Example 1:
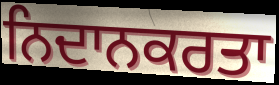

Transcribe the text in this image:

ਨਿਦਾਨਕਰਤਾ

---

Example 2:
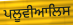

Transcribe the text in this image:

ਪਲੂਵੀਆਲਿਸ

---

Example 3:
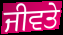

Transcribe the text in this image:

ਜੀਵਤੇ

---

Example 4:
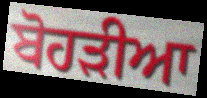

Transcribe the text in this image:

ਬੋਹੜੀਆ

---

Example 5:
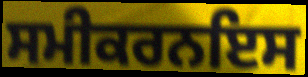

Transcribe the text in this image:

ਸਮੀਕਰਨਇਸ